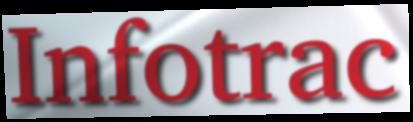
Infotrac